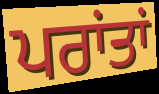
ਪਰਾਂਤਾਂ